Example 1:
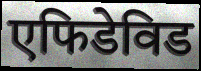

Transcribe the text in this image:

एफिडेविड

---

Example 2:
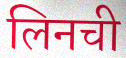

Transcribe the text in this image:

लिनची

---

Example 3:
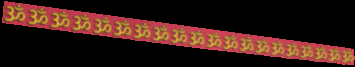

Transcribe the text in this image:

ॐॐॐॐॐॐॐॐॐॐॐॐॐॐॐॐॐॐॐॐ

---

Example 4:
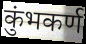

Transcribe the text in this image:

कुंभकर्ण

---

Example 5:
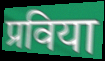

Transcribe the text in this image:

प्रविया